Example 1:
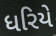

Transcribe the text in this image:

ધરિયે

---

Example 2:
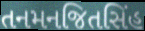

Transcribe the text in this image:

તનમનજિતસિંહ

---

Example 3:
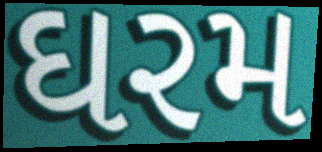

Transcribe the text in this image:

ઘરમ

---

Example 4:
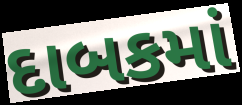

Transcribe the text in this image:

દાબકમાં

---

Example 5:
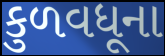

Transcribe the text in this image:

કુળવધૂના